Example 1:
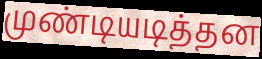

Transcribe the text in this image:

முண்டியடித்தன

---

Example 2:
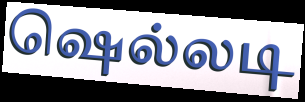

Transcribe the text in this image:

ஷெல்லடி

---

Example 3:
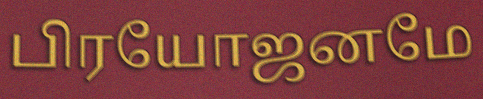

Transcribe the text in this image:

பிரயோஜனமே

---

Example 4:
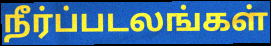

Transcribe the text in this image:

நீர்ப்படலங்கள்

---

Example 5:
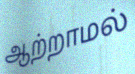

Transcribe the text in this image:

ஆற்றாமல்